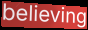
believing